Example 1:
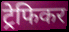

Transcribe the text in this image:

ट्रेफिकर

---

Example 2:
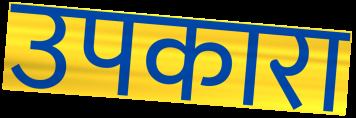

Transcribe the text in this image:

उपकारा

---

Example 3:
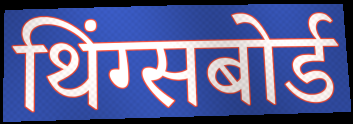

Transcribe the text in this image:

थिंग्सबोर्ड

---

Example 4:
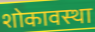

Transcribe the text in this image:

शोकावस्था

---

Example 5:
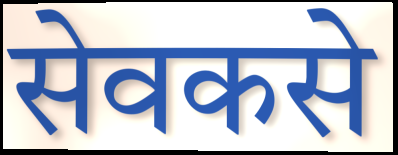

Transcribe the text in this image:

सेवकसे